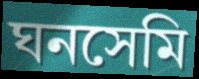
ঘনসেমি